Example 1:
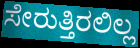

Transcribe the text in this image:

ಸೇರುತ್ತಿರಲಿಲ್ಲ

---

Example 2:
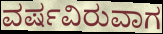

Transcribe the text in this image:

ವರ್ಷವಿರುವಾಗ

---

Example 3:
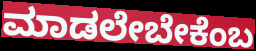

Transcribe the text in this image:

ಮಾಡಲೇಬೇಕೆಂಬ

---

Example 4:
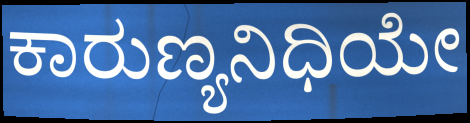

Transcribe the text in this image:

ಕಾರುಣ್ಯನಿಧಿಯೇ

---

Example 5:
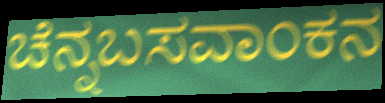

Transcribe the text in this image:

ಚೆನ್ನಬಸವಾಂಕನ